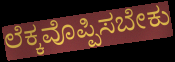
ಲೆಕ್ಕವೊಪ್ಪಿಸಬೇಕು